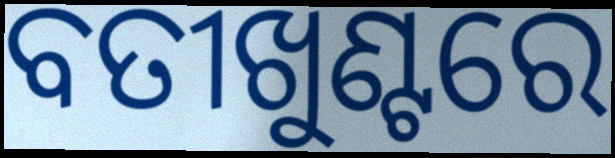
ବତୀଖୁଣ୍ଟରେ